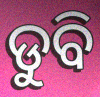
ଡୁବି